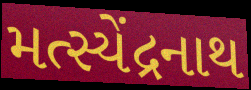
મત્સ્યેંદ્રનાથ